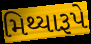
મિથ્યારૂપે